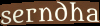
serndha